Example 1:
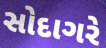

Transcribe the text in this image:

સોદાગરે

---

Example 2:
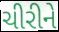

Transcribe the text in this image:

ચીરીને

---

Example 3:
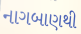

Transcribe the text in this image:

નાગબાણથી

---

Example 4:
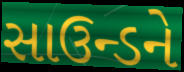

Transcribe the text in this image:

સાઉન્ડને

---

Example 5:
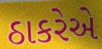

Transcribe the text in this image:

ઠાકરેએ